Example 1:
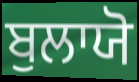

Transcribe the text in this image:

ਬੁਲਾਯੋ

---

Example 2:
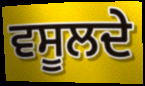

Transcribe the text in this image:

ਵਸੂਲਦੇ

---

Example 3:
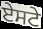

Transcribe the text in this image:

ਏਸਟੇ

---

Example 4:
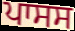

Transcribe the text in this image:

ਪਾਸਸ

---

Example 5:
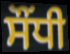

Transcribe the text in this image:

ਸੌਂਧੀ